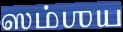
ஸம்ஶய